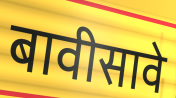
बावीसावे